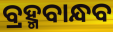
ବ୍ରହ୍ମବାନ୍ଧବ